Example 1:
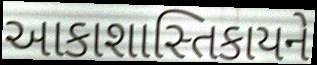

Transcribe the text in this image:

આકાશાસ્તિકાયને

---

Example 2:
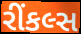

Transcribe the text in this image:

રીંકલ્સ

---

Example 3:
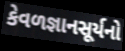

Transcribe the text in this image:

કેવળજ્ઞાનસૂર્યનો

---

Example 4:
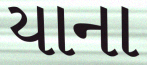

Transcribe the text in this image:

યાના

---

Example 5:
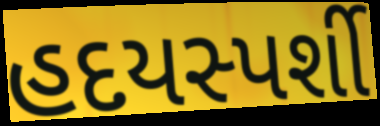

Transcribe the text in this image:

હદયસ્પર્શી